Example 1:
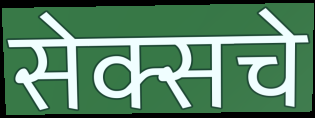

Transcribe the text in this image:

सेक्सचे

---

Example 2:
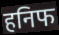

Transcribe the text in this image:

हनिफ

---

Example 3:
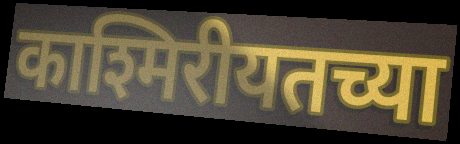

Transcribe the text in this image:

काश्मिरीयतच्या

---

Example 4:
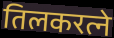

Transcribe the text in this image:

तिलकरत्ने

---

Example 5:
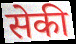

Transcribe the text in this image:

सेकी